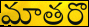
మాతరొ